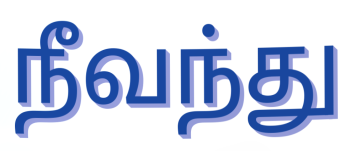
நீவந்து